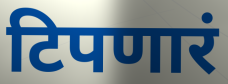
टिपणारं